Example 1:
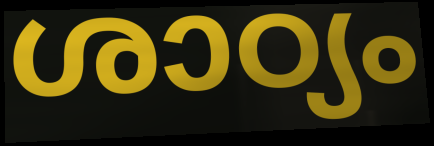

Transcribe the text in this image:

ശാഠ്യം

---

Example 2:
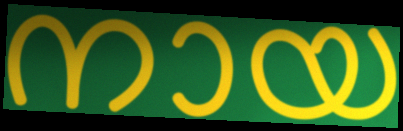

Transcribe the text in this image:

നായ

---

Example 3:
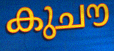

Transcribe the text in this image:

കുചൗ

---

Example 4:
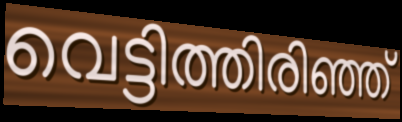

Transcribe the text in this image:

വെട്ടിത്തിരിഞ്ഞ്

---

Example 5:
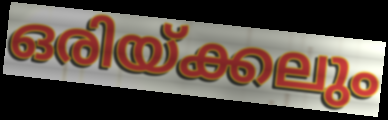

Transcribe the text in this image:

ഒരിയ്ക്കലും